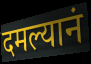
दमल्यानं